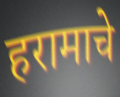
हरामाचे